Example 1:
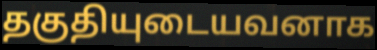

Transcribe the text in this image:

தகுதியுடையவனாக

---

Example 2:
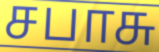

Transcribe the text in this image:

சபாசு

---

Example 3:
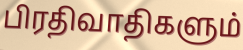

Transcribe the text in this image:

பிரதிவாதிகளும்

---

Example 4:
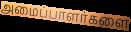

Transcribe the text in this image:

அமைப்பாளர்களை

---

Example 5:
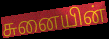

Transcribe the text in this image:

சுனையின்